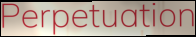
Perpetuation